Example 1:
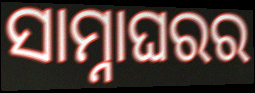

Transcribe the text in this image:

ସାମ୍ନାଘରର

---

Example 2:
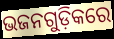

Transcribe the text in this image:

ଭଜନଗୁଡ଼ିକରେ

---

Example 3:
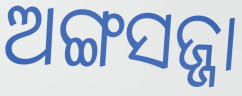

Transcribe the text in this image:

ଅଙ୍ଗସଜ୍ଜା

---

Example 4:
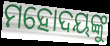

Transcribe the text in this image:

ମହୋଦୟଙ୍କୁ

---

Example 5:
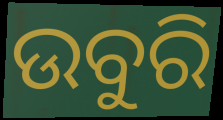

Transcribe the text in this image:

ଉବୁରି